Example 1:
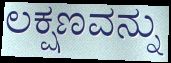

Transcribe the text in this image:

ಲಕ್ಷಣವನ್ನು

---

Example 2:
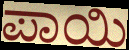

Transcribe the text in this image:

ಪಾಯಿ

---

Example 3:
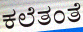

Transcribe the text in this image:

ಕಲೆತಂತೆ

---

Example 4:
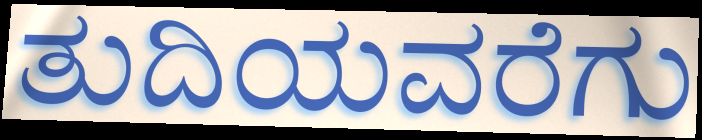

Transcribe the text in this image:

ತುದಿಯವರೆಗು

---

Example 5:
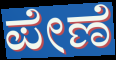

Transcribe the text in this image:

ಪೇಣೆ